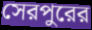
সেরপুরের